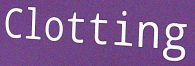
Clotting